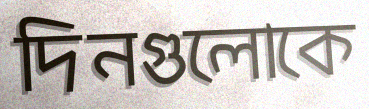
দিনগুলোকে